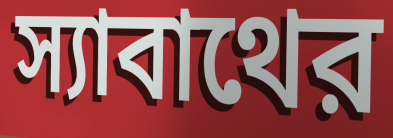
স্যাবাথের